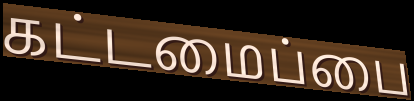
கட்டமைப்பை